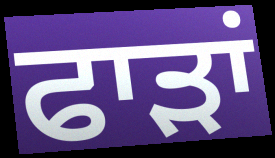
ਫਾੜਾਂ